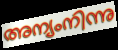
അന്യംനിന്നു